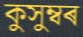
কুসুম্বৰ